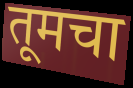
तूमचा